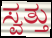
ಸ್ವತ್ತು